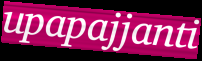
upapajjanti